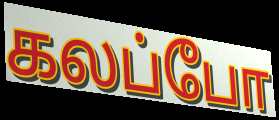
கலப்போ